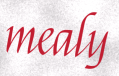
mealy